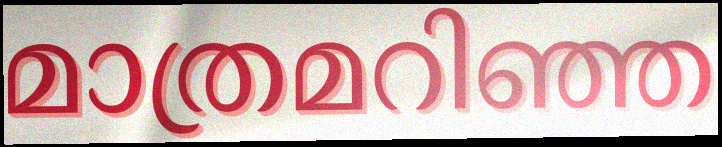
മാത്രമറിഞ്ഞ